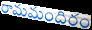
రామమందిరం